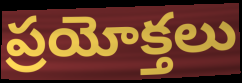
ప్రయోక్తలు